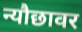
न्यौछावर